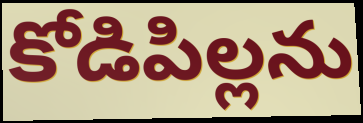
కోడిపిల్లను